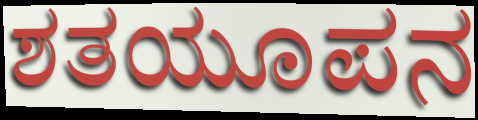
ಶತಯೂಪನ